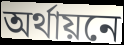
অর্থায়নে